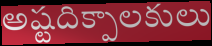
అష్టదిక్పాలకులు